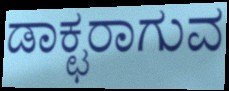
ಡಾಕ್ಟರಾಗುವ